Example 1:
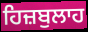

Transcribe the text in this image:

ਹਿਜ਼ਬੁਲਾਹ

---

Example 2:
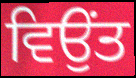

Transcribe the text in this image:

ਵਿਉਂਤ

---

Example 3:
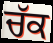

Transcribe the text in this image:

ਚੱਕ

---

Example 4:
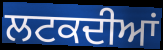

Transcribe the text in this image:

ਲਟਕਦੀਆਂ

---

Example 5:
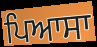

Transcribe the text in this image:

ਪਿਆਸਾ